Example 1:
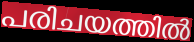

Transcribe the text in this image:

പരിചയത്തിൽ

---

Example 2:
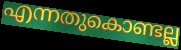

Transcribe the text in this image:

എന്നതുകൊണ്ടല്ല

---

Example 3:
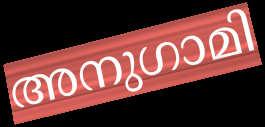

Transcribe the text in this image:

അനുഗാമി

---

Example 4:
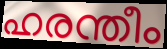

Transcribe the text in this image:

ഹരന്തീം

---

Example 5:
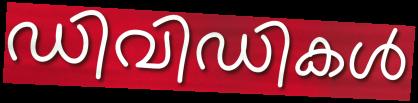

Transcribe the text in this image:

ഡിവിഡികൾ